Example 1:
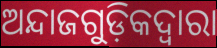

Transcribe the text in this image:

ଅନ୍ଦାଜଗୁଡ଼ିକଦ୍ୱାରା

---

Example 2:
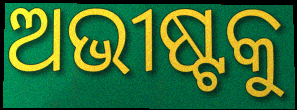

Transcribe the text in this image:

ଅଭୀଷ୍ଟକୁ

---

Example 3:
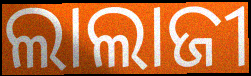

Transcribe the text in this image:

ଲାଲାଜୀ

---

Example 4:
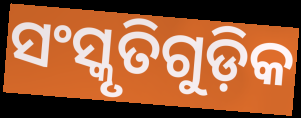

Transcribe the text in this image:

ସଂସ୍କୃତିଗୁଡ଼ିକ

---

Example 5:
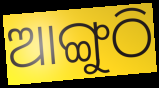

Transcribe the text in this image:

ଆଙ୍ଗୁଠି